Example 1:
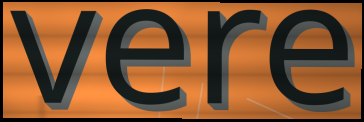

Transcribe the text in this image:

vere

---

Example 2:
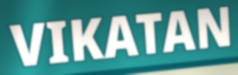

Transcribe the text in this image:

VIKATAN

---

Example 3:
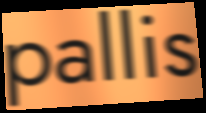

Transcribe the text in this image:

pallis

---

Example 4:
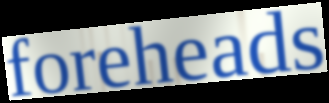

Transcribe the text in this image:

foreheads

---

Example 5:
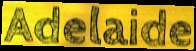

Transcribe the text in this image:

Adelaide